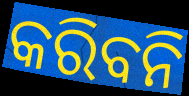
କରିବନି